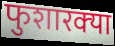
फुशारक्‍या